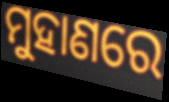
ମୁହାଣରେ